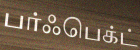
பர்ஃபெக்ட்